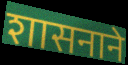
शासनाने